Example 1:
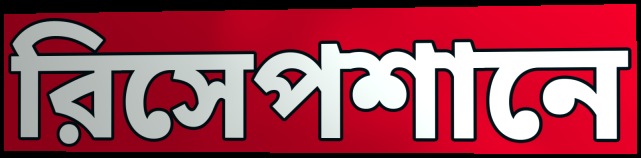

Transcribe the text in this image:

রিসেপশানে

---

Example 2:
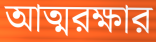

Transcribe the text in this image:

আত্মরক্ষার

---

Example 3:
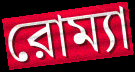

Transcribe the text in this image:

রোম্যা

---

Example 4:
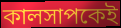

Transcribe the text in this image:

কালসাপকেই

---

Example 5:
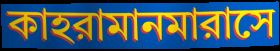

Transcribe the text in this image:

কাহরামানমারাসে